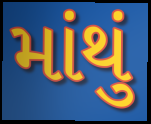
માંથું